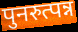
पुनरुत्पन्न